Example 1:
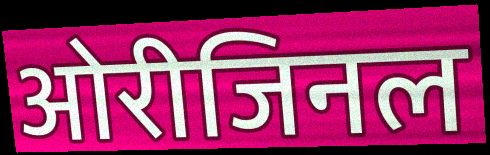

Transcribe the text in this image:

ओरीजिनल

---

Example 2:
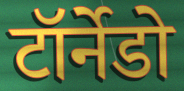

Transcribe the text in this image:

टॉर्नेडो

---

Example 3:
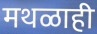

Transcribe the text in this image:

मथळाही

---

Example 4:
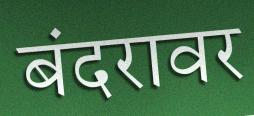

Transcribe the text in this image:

बंदरावर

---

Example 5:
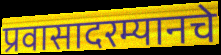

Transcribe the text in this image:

प्रवासादरम्यानचे